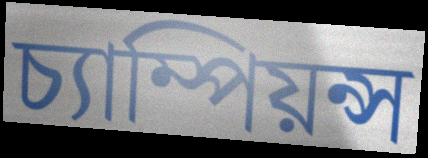
চ্যাম্পিয়ন্স